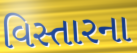
વિસ્તારના